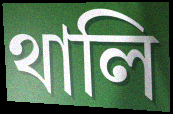
থালি